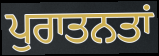
ਪੁਰਾਤਨਤਾਂ